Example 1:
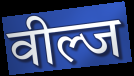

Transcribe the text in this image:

वील्ज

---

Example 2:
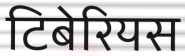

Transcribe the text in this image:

टिबेरियस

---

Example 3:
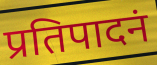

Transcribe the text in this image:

प्रतिपादनं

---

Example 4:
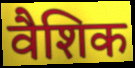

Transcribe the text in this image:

वैशिक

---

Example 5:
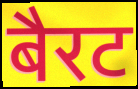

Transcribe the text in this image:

बैरट